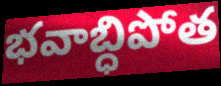
భవాబ్ధిపోత